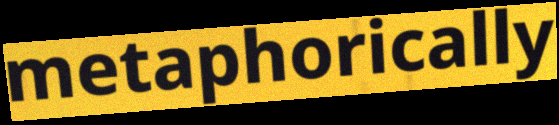
metaphorically